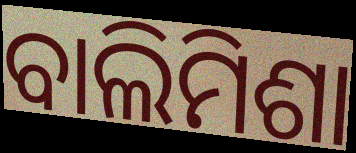
ବାଲିମିଶା